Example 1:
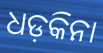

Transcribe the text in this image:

ଧଡ଼କିନା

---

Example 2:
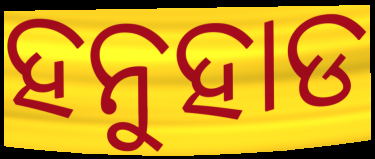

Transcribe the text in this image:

ହନୁହାଡ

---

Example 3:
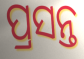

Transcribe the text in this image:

ପ୍ରସନ୍ତ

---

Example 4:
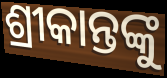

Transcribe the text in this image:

ଶ୍ରୀକାନ୍ତଙ୍କୁ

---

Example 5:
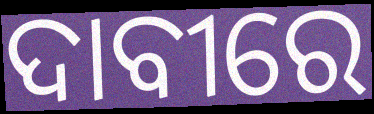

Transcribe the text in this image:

ଦାବୀରେ